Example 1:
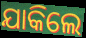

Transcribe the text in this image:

ଯାକିଲେ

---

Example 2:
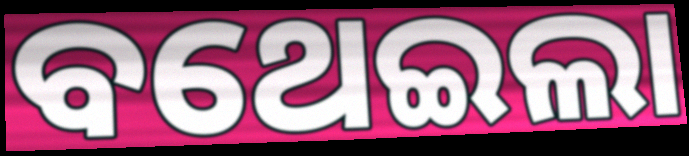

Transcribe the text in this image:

ବଥେଇଲା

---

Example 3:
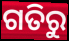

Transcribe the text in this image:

ଗତିରୁ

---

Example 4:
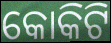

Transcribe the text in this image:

କୋକିଟି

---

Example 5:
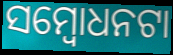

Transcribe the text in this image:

ସମ୍ବୋଧନଟା